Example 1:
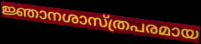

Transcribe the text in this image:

ജ്ഞാനശാസ്ത്രപരമായ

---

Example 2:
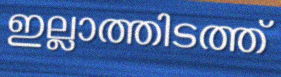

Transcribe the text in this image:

ഇല്ലാത്തിടത്ത്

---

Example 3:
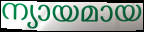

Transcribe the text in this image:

ന്യായമായ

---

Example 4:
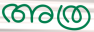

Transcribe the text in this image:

അത്ര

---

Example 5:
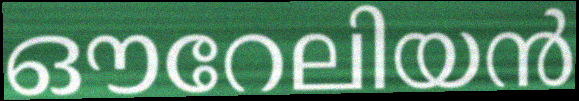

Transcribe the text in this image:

ഔറേലിയൻ